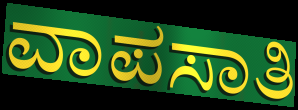
ವಾಪಸಾತಿ